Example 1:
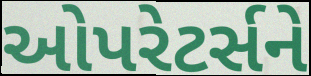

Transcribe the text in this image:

ઓપરેટર્સને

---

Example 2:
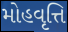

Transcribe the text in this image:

મોહવૃત્તિ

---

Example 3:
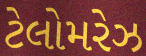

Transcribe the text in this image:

ટેલોમરેઝ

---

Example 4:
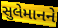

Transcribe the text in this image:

સુલેમાનને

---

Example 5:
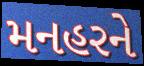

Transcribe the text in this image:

મનહરને